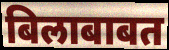
बिलाबाबत